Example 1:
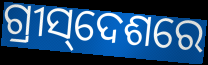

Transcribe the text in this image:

ଗ୍ରୀସ୍‌ଦେଶରେ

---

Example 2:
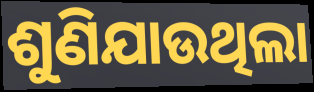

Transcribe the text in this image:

ଶୁଣିଯାଉଥିଲା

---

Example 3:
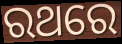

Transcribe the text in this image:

ରଥରେ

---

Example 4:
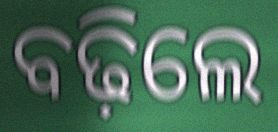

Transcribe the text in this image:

ବଢ଼ିଲେ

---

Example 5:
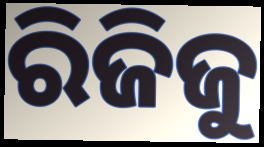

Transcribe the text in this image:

ରିଜିଜୁ